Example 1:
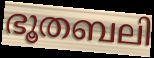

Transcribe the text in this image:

ഭൂതബലി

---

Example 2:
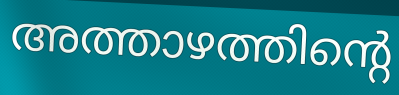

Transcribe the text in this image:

അത്താഴത്തിന്റെ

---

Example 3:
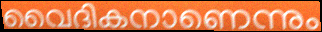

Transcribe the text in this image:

വൈദികനാണെന്നും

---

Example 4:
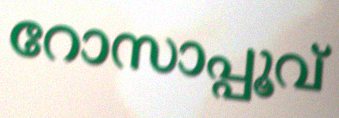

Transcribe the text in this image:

റോസാപ്പൂവ്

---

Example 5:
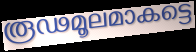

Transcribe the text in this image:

രൂഢമൂലമാകട്ടെ